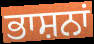
ਭਾਸ਼ਨਾਂ